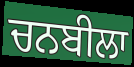
ਚਨਬੀਲਾ